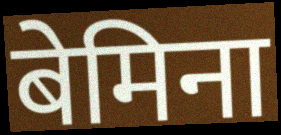
बेमिना